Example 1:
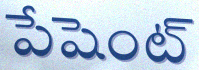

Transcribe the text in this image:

పేషెంట్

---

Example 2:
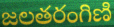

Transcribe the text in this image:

జలతరంగిణి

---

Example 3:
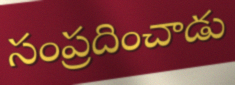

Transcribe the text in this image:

సంప్రదించాడు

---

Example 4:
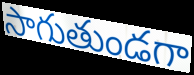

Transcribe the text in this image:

సాగుతుండగా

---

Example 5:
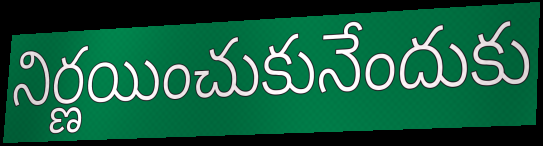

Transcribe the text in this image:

నిర్ణయించుకునేందుకు